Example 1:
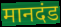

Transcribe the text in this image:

मानदंड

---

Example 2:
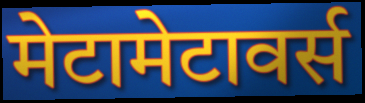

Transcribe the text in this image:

मेटामेटावर्स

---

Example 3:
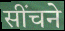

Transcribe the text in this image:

सींचने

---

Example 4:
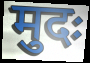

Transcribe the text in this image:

मुदः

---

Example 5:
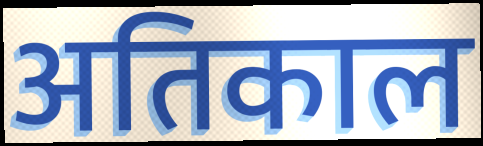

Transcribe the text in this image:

अतिकाल